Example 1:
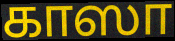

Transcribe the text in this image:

காஸா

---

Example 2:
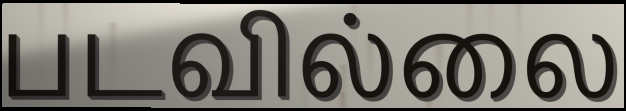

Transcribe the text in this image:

படவில்லை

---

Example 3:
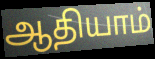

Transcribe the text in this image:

ஆதியாம்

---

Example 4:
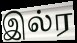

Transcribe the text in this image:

இல்ர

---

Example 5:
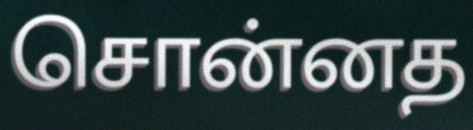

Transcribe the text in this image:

சொன்னத